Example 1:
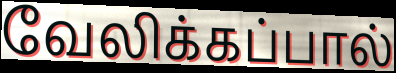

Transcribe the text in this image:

வேலிக்கப்பால்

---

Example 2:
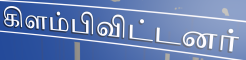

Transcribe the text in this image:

கிளம்பிவிட்டனர்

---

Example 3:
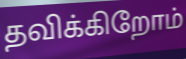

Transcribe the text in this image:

தவிக்கிறோம்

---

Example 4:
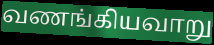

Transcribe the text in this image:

வணங்கியவாறு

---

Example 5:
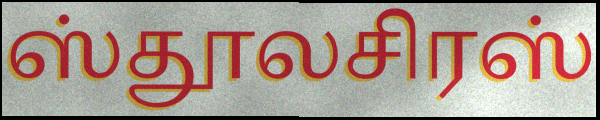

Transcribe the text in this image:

ஸ்தூலசிரஸ்